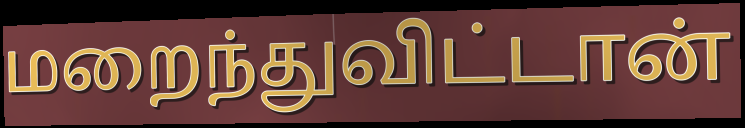
மறைந்துவிட்டான்